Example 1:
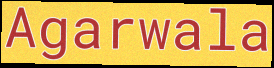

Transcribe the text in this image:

Agarwala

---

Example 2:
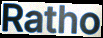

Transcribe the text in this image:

Ratho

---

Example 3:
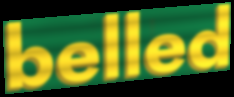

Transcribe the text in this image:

belled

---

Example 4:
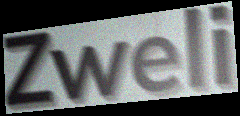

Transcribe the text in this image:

Zweli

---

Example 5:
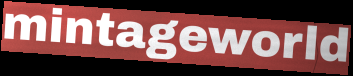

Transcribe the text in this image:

mintageworld